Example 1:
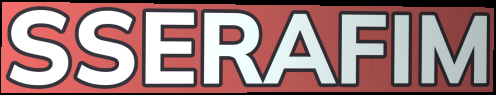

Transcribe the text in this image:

SSERAFIM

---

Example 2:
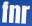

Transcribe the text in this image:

fnr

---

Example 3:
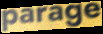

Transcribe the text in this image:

parage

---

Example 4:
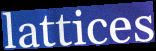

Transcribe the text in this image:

lattices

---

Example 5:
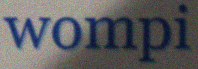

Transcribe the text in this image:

wompi